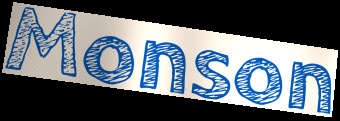
Monson